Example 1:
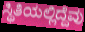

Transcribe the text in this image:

ಸ್ಥಿತಿಯಲ್ಲಿದ್ದೆವು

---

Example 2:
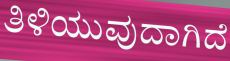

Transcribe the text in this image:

ತಿಳಿಯುವುದಾಗಿದೆ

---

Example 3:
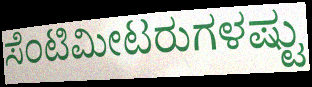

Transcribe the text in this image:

ಸೆಂಟಿಮೀಟರುಗಳಷ್ಟು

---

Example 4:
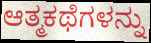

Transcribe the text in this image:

ಆತ್ಮಕಥೆಗಳನ್ನು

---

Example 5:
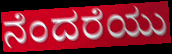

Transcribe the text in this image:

ನೆಂದರೆಯು